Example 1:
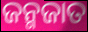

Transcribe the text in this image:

ଜନ୍ମଜାତ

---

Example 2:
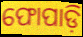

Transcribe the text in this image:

ଫୋପାଡ଼ି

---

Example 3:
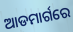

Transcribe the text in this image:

ଆଡମାର୍ଗରେ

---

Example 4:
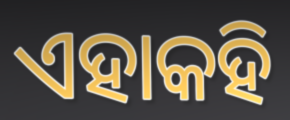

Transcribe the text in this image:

ଏହାକହି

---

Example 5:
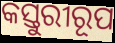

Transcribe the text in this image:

କସ୍ତୁରୀରୂପ